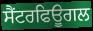
ਸੈਂਟਰਫਿਊਗਲ